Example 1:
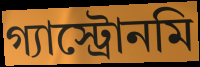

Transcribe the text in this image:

গ্যাস্ট্রোনমি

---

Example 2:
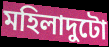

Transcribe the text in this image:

মহিলাদুটো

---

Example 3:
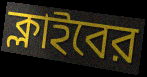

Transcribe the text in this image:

ক্লাইবের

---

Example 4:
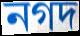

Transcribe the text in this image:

নগদ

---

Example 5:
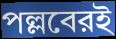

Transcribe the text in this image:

পল্লবেরই